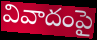
వివాదంపై